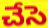
చేసె